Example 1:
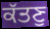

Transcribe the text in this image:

ਕੱਤਣੁ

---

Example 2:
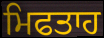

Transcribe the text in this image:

ਮਿਫਤਾਹ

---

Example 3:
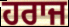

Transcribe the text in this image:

ਹਰਾਜ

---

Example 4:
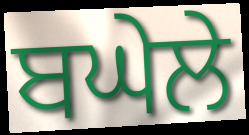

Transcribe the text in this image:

ਬਘੇਲੇ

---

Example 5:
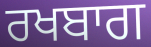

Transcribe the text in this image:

ਰਖਬਾਗ